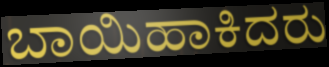
ಬಾಯಿಹಾಕಿದರು